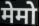
मेमो